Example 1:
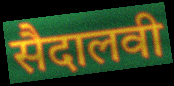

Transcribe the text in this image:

सैदालवी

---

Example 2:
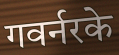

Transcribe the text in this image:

गवर्नरके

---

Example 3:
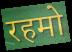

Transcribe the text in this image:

रहमो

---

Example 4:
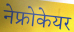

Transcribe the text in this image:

नेफ्रोकेयर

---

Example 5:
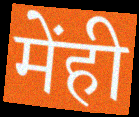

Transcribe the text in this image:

मेंही